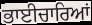
ਭਾਈਚਾਰਿਆਂ